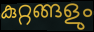
കുറ്റങ്ങളും